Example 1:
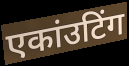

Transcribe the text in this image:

एकांउटिंग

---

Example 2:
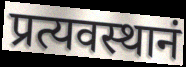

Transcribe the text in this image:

प्रत्यवस्थानं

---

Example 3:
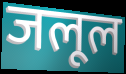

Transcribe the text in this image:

जलूल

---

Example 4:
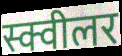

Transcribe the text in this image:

स्क्वीलर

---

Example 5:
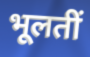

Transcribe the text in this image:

भूलतीं